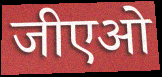
जीएओ